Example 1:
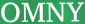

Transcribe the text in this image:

OMNY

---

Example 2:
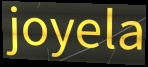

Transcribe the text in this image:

joyela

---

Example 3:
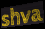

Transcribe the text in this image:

shva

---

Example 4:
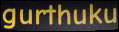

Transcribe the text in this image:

gurthuku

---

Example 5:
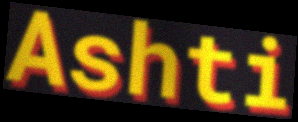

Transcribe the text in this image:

Ashti